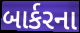
બાર્કરના